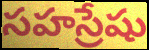
సహస్రేషు